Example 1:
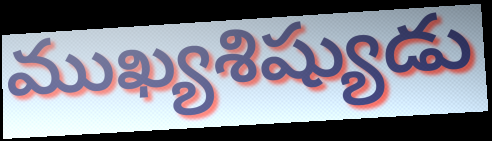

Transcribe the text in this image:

ముఖ్యశిష్యుడు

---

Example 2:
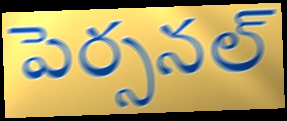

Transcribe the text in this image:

పెర్సనల్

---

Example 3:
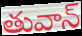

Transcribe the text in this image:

తువాన్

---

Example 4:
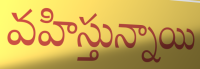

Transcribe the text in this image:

వహిస్తున్నాయి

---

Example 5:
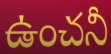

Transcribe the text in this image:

ఉంచనీ